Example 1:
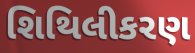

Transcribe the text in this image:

શિથિલીકરણ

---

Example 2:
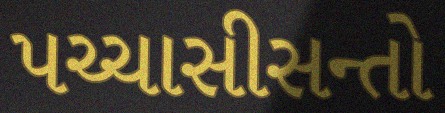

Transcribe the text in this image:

પચ્ચાસીસન્તો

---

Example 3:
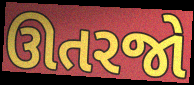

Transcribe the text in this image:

ઊતરજો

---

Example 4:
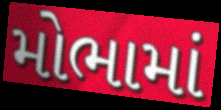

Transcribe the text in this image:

મોભામાં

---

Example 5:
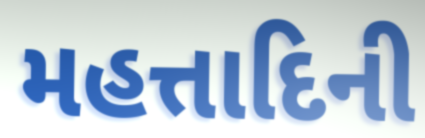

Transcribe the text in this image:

મહત્તાદિની